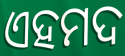
ଏହମଦ